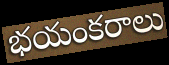
భయంకరాలు